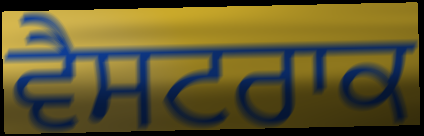
ਵੈਸਟਰਾਕ